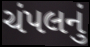
ચંપલનું